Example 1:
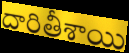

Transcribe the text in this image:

దారితీశాయి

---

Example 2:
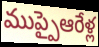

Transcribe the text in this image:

ముప్పైఆరేళ్ల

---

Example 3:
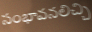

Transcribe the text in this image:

సంభావనలిచ్చి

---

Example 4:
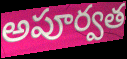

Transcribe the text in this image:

అపూర్వత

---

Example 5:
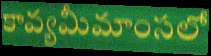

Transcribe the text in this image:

కావ్యమీమాంసలో